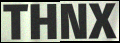
THNX